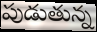
పుడుతున్న